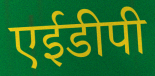
एईडीपी